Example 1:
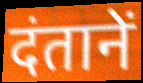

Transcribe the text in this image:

दंतानें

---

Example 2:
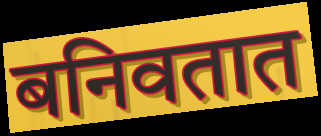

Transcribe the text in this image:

बनिवतात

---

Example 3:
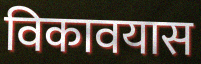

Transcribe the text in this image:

विकावयास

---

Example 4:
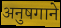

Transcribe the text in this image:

अनुषगाने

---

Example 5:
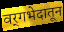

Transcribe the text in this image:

वर्गभेदातून